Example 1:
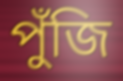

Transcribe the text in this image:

পুঁজি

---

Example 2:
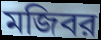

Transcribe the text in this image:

মজিবর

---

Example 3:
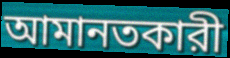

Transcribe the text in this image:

আমানতকারী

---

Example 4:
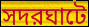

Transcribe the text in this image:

সদরঘাটে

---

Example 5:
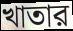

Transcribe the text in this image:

খাতার